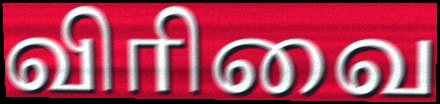
விரிவை